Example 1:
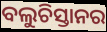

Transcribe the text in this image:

ବଲୁଚିସ୍ତାନର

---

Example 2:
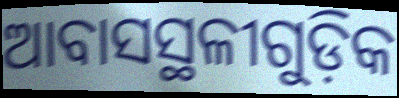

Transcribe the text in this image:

ଆବାସସ୍ଥଳୀଗୁଡ଼ିକ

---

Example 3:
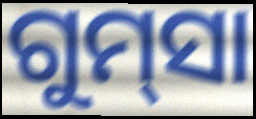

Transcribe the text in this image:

ଗୁମ୍‌ସା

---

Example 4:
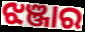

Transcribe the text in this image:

ଝଞ୍ଜାର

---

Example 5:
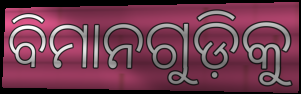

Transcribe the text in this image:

ବିମାନଗୁଡ଼ିକୁ